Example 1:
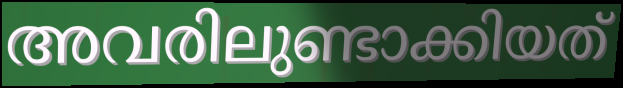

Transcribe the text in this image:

അവരിലുണ്ടാക്കിയത്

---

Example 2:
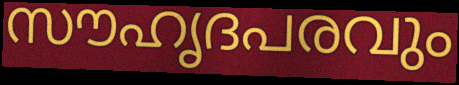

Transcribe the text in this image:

സൗഹൃദപരവും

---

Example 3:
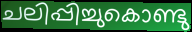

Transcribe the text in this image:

ചലിപ്പിച്ചുകൊണ്ടു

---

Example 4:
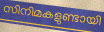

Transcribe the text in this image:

സിനിമകളുണ്ടായി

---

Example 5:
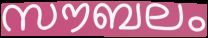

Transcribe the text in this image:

സൗബലം